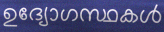
ഉദ്യോഗസ്ഥകൾ